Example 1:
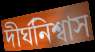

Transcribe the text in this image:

দীর্ঘনিশ্বাস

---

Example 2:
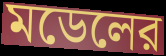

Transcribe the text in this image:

মডেলের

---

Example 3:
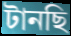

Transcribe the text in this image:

টানছি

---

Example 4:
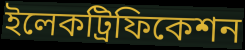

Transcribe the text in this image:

ইলেকট্রিফিকেশন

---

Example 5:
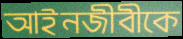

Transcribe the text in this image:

আইনজীবীকে